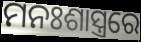
ମନଃଶାସ୍ତ୍ରରେ